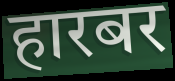
हारबर